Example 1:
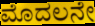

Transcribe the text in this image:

ಮೊದಲನೇ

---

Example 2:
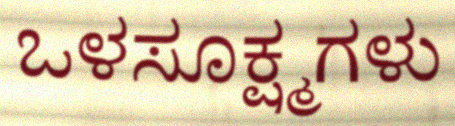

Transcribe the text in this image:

ಒಳಸೂಕ್ಷ್ಮಗಳು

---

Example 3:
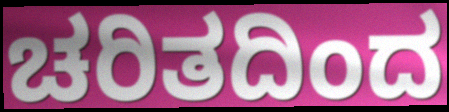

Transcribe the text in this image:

ಚರಿತದಿಂದ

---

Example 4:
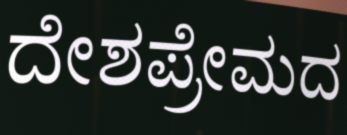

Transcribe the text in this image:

ದೇಶಪ್ರೇಮದ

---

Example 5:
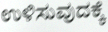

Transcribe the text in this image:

ಉಳಿಸುವುದಕ್ಕೆ